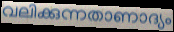
വലിക്കുന്നതാണാദ്യം